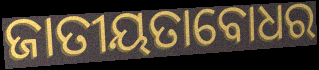
ଜାତୀୟତାବୋଧର